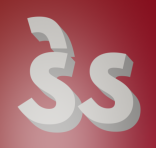
ડેડ